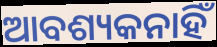
ଆବଶ୍ୟକନାହିଁ